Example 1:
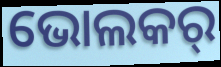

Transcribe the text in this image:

ଭୋଲକର୍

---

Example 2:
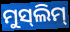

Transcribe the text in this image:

ମୁସ୍‌ଲିମ୍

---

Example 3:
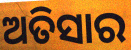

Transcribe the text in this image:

ଅତିସାର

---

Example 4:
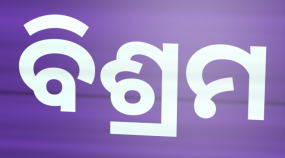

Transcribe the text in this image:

ବିଶ୍ରମ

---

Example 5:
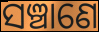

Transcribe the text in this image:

ସଞ୍ଚାଣେ